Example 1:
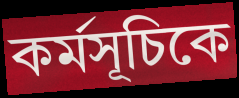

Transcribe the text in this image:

কর্মসূচিকে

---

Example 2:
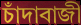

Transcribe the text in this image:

চাঁদাবাজী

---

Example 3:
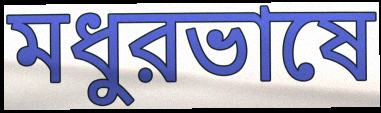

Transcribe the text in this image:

মধুরভাষে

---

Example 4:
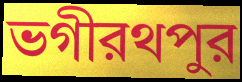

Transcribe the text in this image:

ভগীরথপুর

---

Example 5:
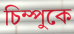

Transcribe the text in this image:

চিম্পুকে